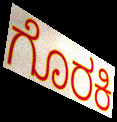
ಗೊರಕಿ